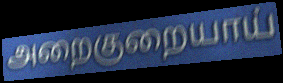
அறைகுறையாய்